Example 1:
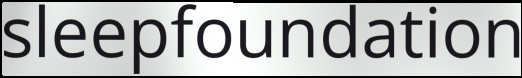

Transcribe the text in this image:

sleepfoundation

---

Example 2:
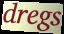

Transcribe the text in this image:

dregs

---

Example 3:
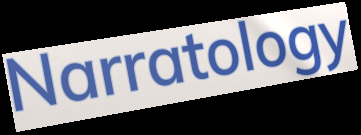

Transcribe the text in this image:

Narratology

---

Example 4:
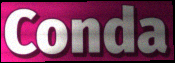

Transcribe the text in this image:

Conda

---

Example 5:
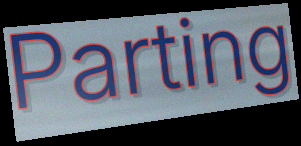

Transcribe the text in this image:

Parting